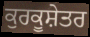
ਕੁਰਕੂਸ਼ੇਤਰ